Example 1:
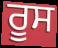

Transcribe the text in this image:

ਰੂਸ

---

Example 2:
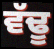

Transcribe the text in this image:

ਵੱਢੂ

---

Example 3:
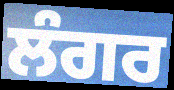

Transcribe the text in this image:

ਲੰਗਰ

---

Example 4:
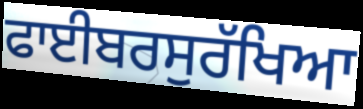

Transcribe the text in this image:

ਫਾਈਬਰਸੁਰੱਖਿਆ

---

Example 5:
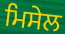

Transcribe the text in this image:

ਮਿਸੇਲ